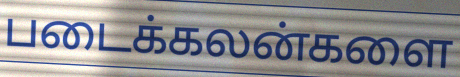
படைக்கலன்களை